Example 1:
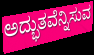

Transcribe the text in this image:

ಅದ್ಭುತವೆನ್ನಿಸುವ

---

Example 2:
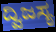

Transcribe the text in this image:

ದ್ವಿಜಸ್ಯ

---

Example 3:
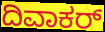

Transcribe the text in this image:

ದಿವಾಕರ್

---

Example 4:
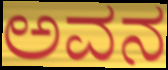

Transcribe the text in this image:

ಅವನ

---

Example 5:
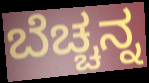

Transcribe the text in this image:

ಬೆಚ್ಚನ್ನ